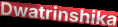
Dwatrinshika